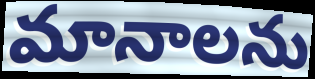
మానాలను